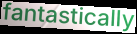
fantastically